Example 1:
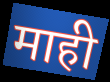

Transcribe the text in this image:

माही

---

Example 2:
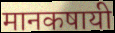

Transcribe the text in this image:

मानकषायी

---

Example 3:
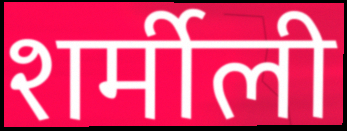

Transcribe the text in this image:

शर्मीली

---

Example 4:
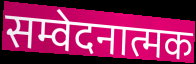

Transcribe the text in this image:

सम्वेदनात्मक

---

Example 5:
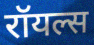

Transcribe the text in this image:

रॉयल्स